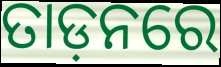
ତାଡ଼ନରେ